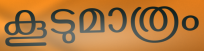
കൂടുമാത്രം